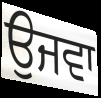
ਉਜਵਾ